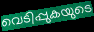
വെടിപ്പുകയുടെ